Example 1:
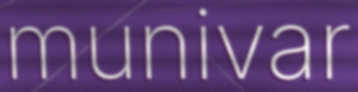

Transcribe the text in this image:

munivar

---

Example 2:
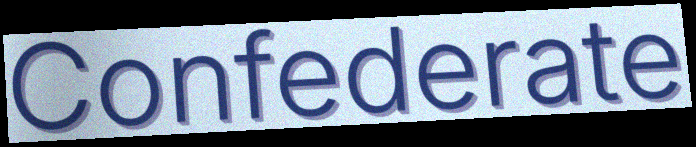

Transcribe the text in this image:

Confederate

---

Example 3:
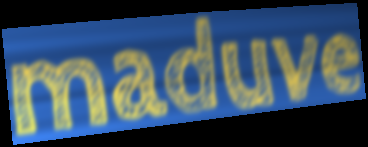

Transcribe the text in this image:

maduve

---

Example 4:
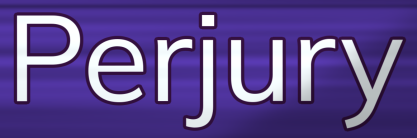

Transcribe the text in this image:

Perjury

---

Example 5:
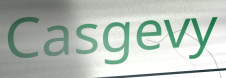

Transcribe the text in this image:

Casgevy